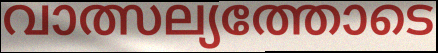
വാത്സല്യത്തോടെ